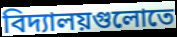
বিদ্যালয়গুলোতে